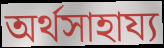
অর্থসাহায্য